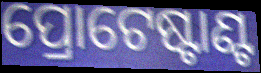
ପ୍ରୋଟେଷ୍ଟାଣ୍ଟ